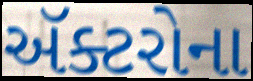
ઍક્ટરોના